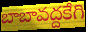
బాబావద్దకేగి